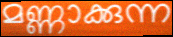
മണ്ണാക്കുന്ന